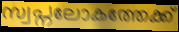
സ്വപ്നലോകത്തേക്ക്